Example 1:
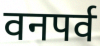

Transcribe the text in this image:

वनपर्व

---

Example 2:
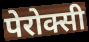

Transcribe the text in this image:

पेरोक्सी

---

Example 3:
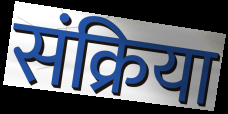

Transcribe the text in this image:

संक्रिया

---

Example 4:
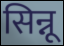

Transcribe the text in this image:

सिन्नू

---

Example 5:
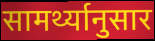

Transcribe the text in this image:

सामर्थ्यानुसार